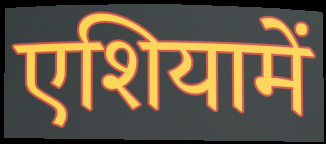
एशियामें